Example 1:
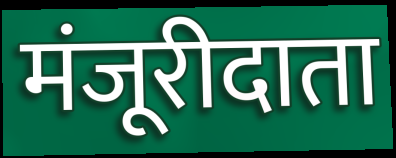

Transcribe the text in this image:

मंजूरीदाता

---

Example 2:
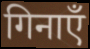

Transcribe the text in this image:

गिनाएँ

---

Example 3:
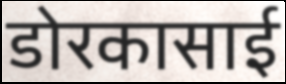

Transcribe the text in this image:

डोरकासाई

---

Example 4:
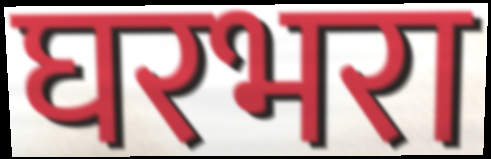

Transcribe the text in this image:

घरभरा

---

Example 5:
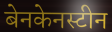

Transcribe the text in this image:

बेनकेनस्टीन